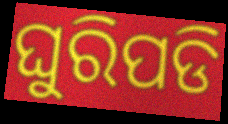
ଘୁରିପଡି